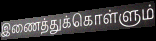
இணைத்துக்கொள்ளும்